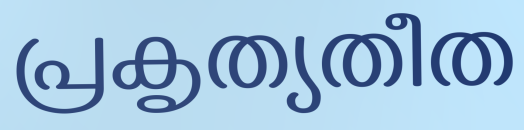
പ്രകൃത്യതീത